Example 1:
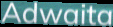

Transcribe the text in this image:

Adwaita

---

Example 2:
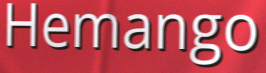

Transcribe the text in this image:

Hemango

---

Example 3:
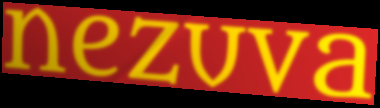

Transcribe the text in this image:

nezuva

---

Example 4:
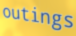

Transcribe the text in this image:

outings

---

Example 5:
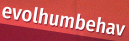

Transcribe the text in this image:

evolhumbehav